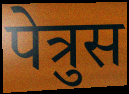
पेत्रुस